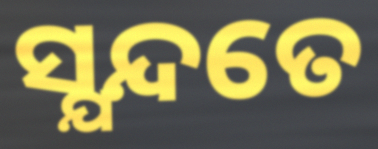
ସ୍ଯନ୍ଦତେ